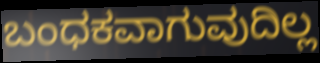
ಬಂಧಕವಾಗುವುದಿಲ್ಲ